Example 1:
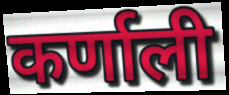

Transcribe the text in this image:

कर्णाली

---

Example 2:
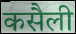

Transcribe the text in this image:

कसैली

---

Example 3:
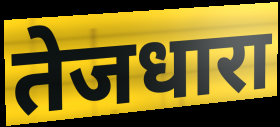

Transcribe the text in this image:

तेजधारा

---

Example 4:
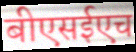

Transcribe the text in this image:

बीएसईएच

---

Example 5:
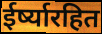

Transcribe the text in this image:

ईर्ष्यारहित